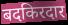
बदकिरदार